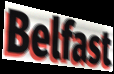
Belfast